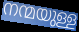
നന്മയുള്ള